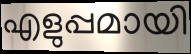
എളുപ്പമായി